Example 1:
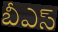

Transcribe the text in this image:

బీఎస్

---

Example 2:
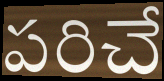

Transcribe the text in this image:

పరిచే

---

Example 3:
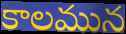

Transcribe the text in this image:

కాలమున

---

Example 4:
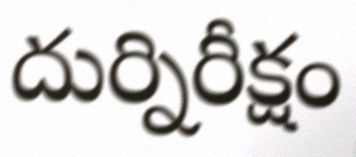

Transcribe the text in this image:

దుర్నిరీక్షం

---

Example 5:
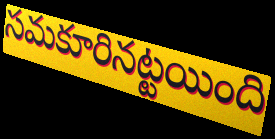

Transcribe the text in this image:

సమకూరినట్టయింది